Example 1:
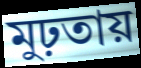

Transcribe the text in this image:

মুঢ়তায়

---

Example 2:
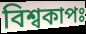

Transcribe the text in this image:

বিশ্বকাপঃ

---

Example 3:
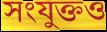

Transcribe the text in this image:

সংযুক্তও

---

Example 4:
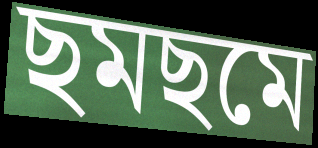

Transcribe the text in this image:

ছমছমে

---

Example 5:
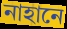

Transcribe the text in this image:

নাহানে